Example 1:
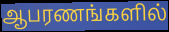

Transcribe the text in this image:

ஆபரணங்களில்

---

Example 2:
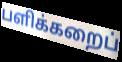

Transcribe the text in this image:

பளிக்கறைப்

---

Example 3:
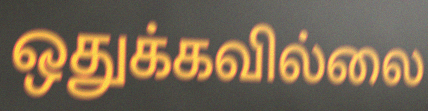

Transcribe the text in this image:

ஒதுக்கவில்லை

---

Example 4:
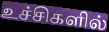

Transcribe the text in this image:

உச்சிகளில்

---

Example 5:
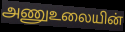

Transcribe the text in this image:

அணுஉலையின்